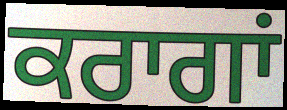
ਕਰਾਗਾਂ